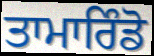
ਤਾਮਾਰਿੰਡੋ